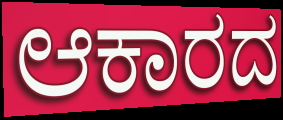
ಆಕಾರದ